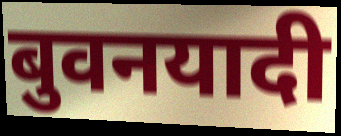
बुवनयादी